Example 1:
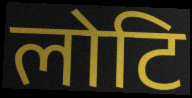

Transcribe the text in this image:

लोटि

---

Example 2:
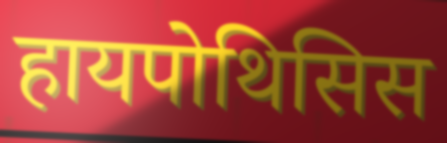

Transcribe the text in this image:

हायपोथिसिस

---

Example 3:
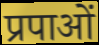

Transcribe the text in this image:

प्रपाओं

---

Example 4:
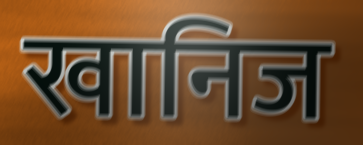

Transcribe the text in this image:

खानिज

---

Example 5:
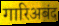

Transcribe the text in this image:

गारिअबंद